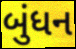
બુંધન